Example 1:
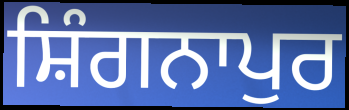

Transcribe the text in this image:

ਸ਼ਿੰਗਨਾਪੁਰ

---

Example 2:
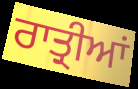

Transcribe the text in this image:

ਰਾਤ੍ਰੀਆਂ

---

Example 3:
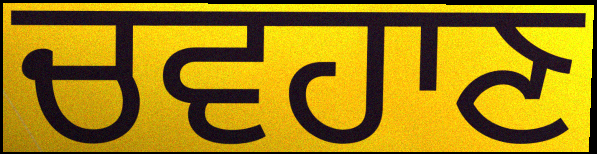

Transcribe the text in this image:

ਚਵਹਾਣ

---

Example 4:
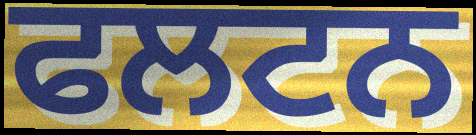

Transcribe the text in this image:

ਫਲਟਨ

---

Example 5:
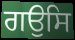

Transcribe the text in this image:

ਗਉਸਿ